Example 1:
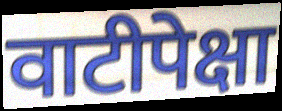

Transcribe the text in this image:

वाटीपेक्षा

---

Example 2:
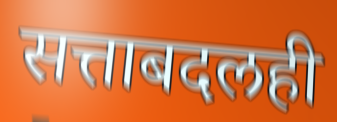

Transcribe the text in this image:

सत्ताबदलही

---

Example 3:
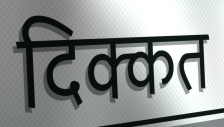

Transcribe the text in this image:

दिक्कत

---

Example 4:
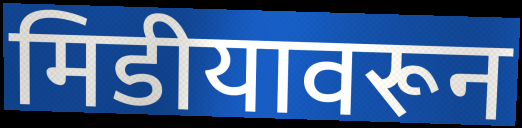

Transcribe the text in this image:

मिडीयावरून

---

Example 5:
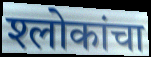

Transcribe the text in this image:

श्लोकांचा